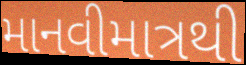
માનવીમાત્રથી